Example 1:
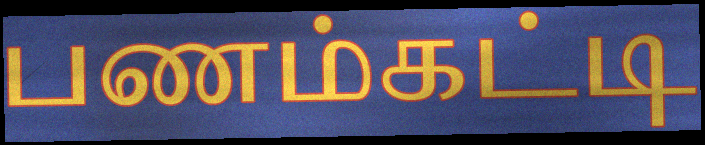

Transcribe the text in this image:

பணம்கட்டி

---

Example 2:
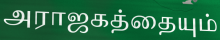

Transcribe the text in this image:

அராஜகத்தையும்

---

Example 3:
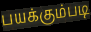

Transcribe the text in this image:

பயக்கும்படி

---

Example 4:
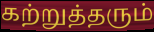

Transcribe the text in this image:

கற்றுத்தரும்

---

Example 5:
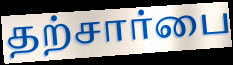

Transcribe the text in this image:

தற்சார்பை